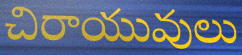
చిరాయువులు